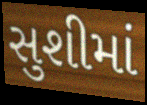
સુશીમાં